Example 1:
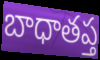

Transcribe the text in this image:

బాధాతప్త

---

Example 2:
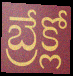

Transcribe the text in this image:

బ్రేక్లో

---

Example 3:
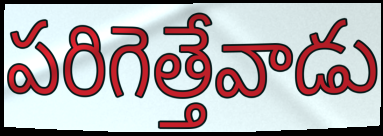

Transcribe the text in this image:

పరిగెత్తేవాడు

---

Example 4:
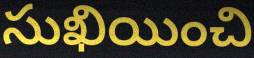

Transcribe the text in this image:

సుఖియించి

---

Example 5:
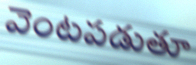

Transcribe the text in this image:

వెంటపడుతూ